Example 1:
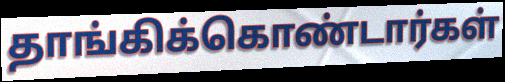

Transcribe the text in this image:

தாங்கிக்கொண்டார்கள்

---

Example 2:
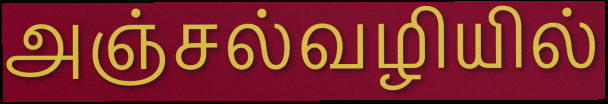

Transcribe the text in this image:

அஞ்சல்வழியில்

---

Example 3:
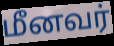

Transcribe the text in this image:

மீனவர்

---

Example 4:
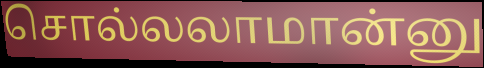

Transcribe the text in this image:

சொல்லலாமான்னு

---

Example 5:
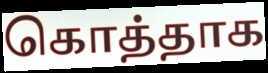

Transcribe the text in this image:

கொத்தாக